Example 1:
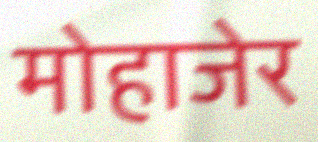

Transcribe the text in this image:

मोहाजेर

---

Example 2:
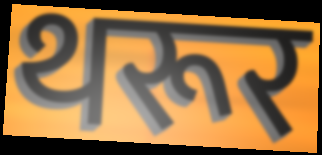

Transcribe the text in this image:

थरूर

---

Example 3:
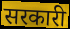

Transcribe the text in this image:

सरकारी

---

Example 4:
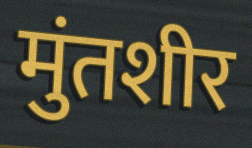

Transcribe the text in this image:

मुंतशीर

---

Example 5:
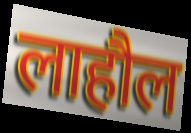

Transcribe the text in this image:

लाहौल